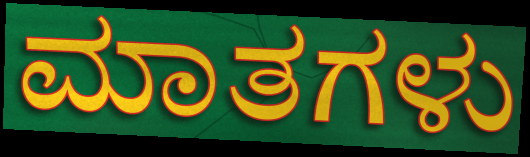
ಮಾತಗಳು